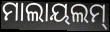
ମାଲାୟଲମ୍